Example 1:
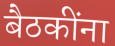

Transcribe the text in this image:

बैठकींना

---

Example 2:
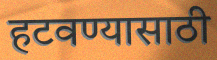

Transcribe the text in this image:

हटवण्यासाठी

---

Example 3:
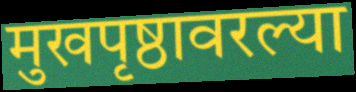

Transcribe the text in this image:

मुखपृष्ठावरल्या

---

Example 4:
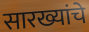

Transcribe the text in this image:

सारख्यांचे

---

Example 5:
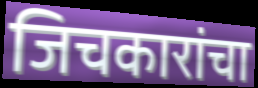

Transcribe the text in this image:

जिचकारांचा